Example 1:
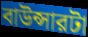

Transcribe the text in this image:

বাউন্সারটা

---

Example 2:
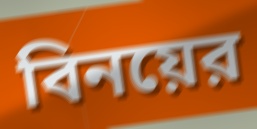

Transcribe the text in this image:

বিনয়ের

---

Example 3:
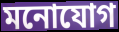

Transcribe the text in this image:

মনোযোগ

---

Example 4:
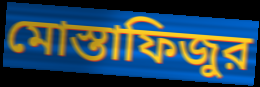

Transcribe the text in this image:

মোস্তাফিজুর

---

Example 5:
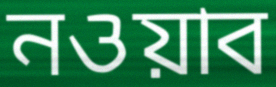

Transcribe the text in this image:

নওয়াব